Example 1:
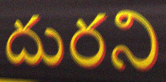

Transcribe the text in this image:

దురని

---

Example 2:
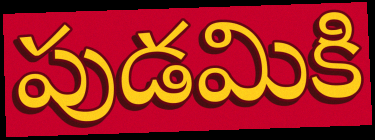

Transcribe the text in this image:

పుడమికి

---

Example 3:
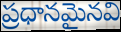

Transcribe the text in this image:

ప్రధానమైనవి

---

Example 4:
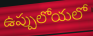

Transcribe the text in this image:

ఉప్పులోయలో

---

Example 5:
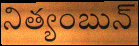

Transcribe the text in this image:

నిత్యంబున్